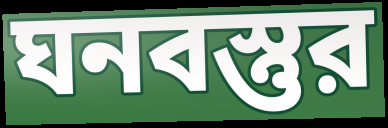
ঘনবস্তুর